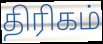
திரிகம்